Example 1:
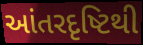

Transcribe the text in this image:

આંતરદૃષ્ટિથી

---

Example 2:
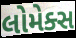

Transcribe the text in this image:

લોમેક્સ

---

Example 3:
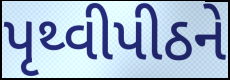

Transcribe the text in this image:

પૃથ્વીપીઠને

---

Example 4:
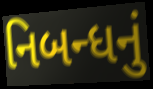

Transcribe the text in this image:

નિબન્ધનું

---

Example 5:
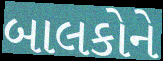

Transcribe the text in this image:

બાલકોને